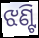
ଝଣ୍ଟି